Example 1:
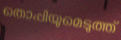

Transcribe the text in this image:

തൊപ്പിയുമെടുത്ത്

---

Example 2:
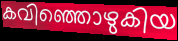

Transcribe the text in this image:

കവിഞ്ഞൊഴുകിയ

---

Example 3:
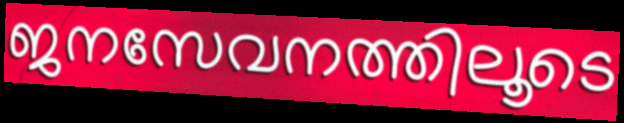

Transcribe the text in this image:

ജനസേവനത്തിലൂടെ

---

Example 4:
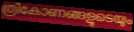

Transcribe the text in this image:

ത്രികോണങ്ങളുടെയും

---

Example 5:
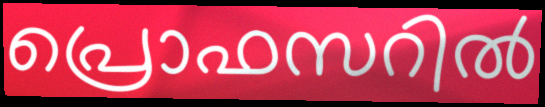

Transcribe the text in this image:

പ്രൊഫസറിൽ